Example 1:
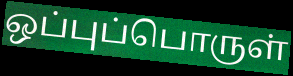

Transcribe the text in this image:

ஒப்புப்பொருள்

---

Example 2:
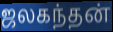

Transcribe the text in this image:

ஜலகந்தன்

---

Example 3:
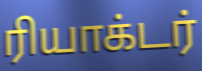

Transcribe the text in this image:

ரியாக்டர்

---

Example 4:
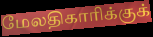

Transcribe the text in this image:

மேலதிகாரிக்குக்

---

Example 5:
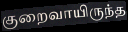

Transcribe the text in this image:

குறைவாயிருந்த